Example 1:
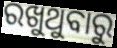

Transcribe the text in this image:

ରଖୁଥୁବାରୁ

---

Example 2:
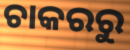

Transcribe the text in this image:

ଚାକରରୁ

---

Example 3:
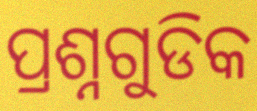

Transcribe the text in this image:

ପ୍ରଶ୍ନଗୁଡିକ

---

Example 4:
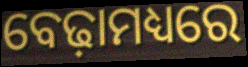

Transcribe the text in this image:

ବେଢ଼ାମଧ୍ୟରେ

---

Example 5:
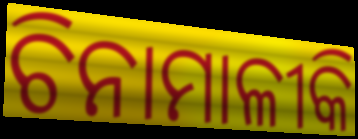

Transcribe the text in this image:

ଚିନାମାଳୀକି